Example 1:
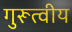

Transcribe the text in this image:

गुरूत्वीय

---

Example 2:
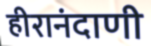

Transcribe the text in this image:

हीरानंदाणी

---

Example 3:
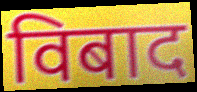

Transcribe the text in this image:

विबाद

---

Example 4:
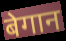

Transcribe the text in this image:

बेगान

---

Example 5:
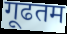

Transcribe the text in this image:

गूढतम